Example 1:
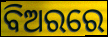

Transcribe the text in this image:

ବିଅରରେ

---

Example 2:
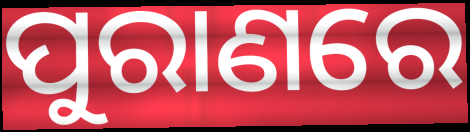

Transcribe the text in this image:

ପୁରାଣରେ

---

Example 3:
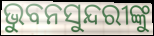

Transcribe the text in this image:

ଭୁବନସୁନ୍ଦରୀଙ୍କୁ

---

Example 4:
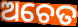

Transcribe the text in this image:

ଅଚେତ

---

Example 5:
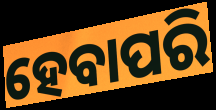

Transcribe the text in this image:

ହେବାପରି